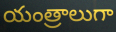
యంత్రాలుగా